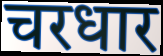
चरधार